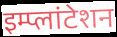
इम्प्लांटेशन